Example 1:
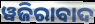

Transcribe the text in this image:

ୱଜିରାବାଦ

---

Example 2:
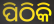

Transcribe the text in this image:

ପିଠିକି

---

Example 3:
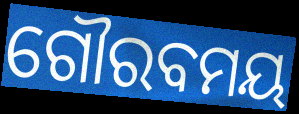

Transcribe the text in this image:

ଗୌରବମୟ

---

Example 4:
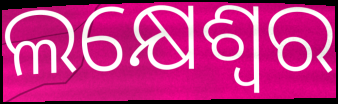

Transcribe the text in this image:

ଲକ୍ଷେଶ୍ୱର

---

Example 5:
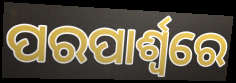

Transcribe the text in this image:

ପରପାର୍ଶ୍ୱରେ